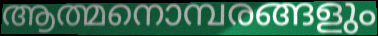
ആത്മനൊമ്പരങ്ങളും